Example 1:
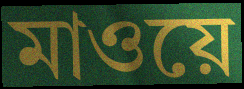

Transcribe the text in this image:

মাওয়ে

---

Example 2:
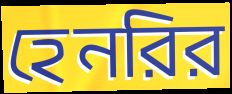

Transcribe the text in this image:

হেনরির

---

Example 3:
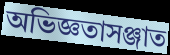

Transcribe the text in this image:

অভিজ্ঞতাসঞ্জাত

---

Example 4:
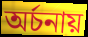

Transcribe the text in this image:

অর্চনায়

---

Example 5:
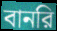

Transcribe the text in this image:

বানরি